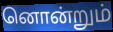
னொன்றும்